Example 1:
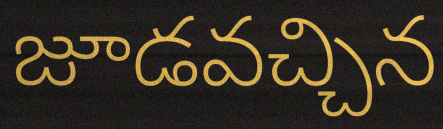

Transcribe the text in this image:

జూడవచ్చిన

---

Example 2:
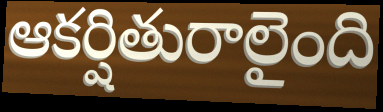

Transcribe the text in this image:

ఆకర్షితురాలైంది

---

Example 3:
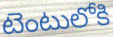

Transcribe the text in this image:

టెంటులోకి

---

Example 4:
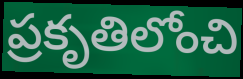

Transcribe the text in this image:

ప్రకృతిలోంచి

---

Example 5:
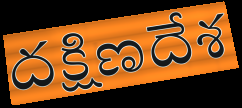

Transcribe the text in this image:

దక్షిణదేశ